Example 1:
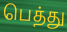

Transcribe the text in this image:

பெத்து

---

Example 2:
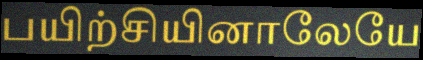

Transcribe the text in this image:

பயிற்சியினாலேயே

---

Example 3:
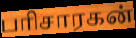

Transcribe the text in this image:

பரிசாரகன்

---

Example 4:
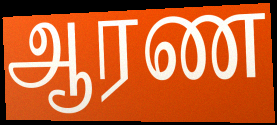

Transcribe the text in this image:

ஆரண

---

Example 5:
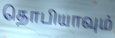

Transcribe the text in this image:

தொபியாவும்